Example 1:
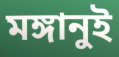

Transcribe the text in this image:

মঙ্গানুই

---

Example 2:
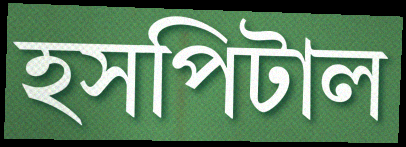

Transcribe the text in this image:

হসপিটাল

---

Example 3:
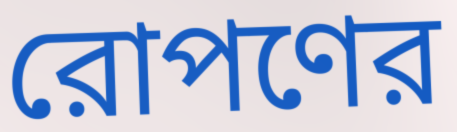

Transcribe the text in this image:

রোপণের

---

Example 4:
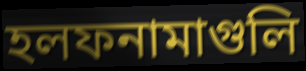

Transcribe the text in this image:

হলফনামাগুলি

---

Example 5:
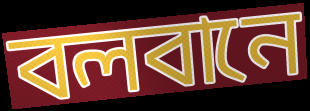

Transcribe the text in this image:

বলবানে